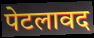
पेटलावद